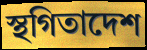
স্থগিতাদেশ